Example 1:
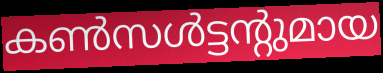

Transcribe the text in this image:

കൺസൾട്ടന്റുമായ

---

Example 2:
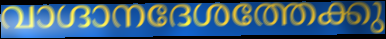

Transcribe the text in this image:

വാഗ്ദാനദേശത്തേക്കു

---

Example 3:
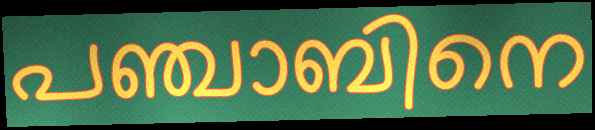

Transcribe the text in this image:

പഞ്ചാബിനെ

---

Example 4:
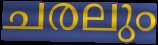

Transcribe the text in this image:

ചരലും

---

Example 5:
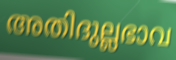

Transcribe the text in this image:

അതിദുല്ലഭാവ